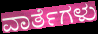
ವಾರ್ತೆಗಳು